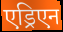
एड्रिएन